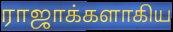
ராஜாக்களாகிய